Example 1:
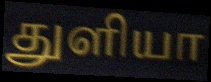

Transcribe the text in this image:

துளியா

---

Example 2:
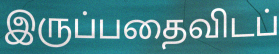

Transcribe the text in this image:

இருப்பதைவிடப்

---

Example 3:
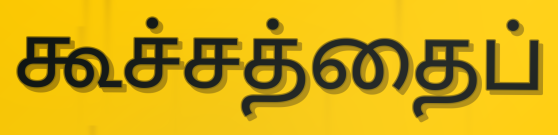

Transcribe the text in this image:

கூச்சத்தைப்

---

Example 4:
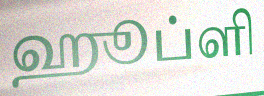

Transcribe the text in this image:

ஹூப்ளி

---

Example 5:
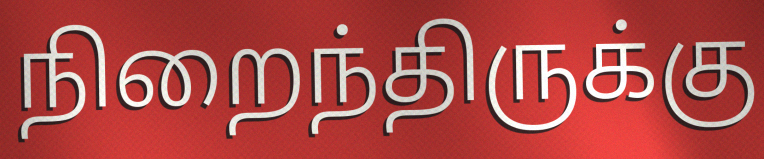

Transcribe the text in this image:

நிறைந்திருக்கு